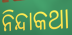
ନିନ୍ଦାକଥା